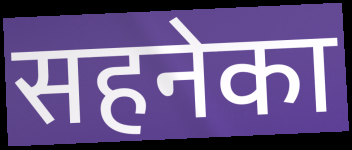
सहनेका